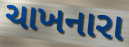
ચાખનારા